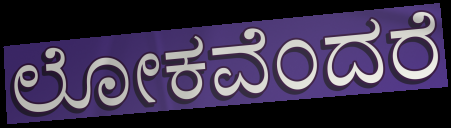
ಲೋಕವೆಂದರೆ